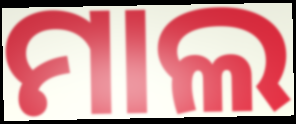
ମାଲ